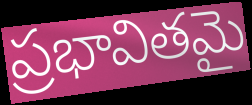
ప్రభావితమై